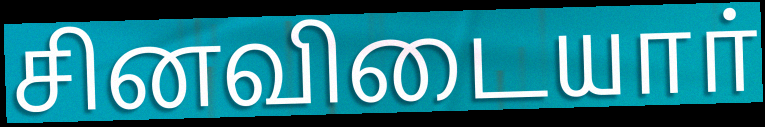
சினவிடையார்